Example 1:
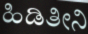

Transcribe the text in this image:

ಹಿಡಿತೀನಿ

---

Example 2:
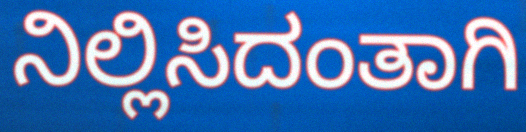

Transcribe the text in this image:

ನಿಲ್ಲಿಸಿದಂತಾಗಿ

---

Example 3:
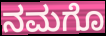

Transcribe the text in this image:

ನಮಗೊ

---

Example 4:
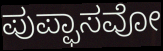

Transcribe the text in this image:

ಪುಪ್ಫಾಸವೋ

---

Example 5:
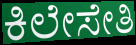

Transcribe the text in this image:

ಕಿಲೇಸೇತಿ